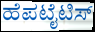
ಹೆಪಟೈಟಿಸ್